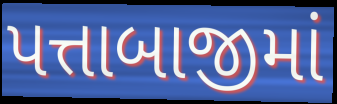
પત્તાબાજીમાં